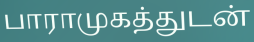
பாராமுகத்துடன்